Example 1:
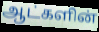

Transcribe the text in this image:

ஆட்களின்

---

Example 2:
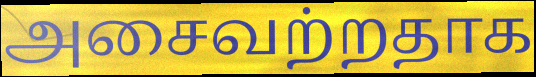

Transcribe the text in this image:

அசைவற்றதாக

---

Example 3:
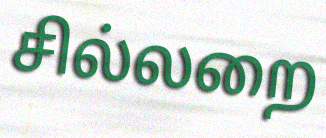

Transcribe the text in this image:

சில்லறை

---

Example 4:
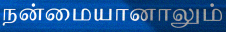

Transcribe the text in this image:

நன்மையானாலும்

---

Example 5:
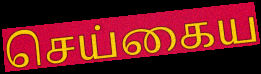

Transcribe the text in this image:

செய்கைய